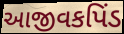
આજીવકપિંડ